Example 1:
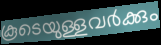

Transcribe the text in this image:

കൂടെയുള്ളവർക്കും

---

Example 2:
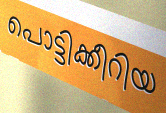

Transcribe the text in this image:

പൊട്ടിക്കീറിയ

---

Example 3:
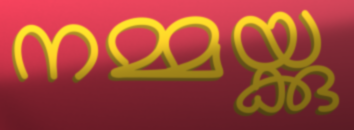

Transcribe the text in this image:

നമ്മയ്ക്കു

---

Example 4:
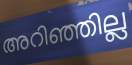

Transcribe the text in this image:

അറിഞ്ഞില്ല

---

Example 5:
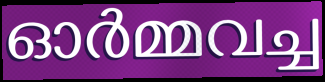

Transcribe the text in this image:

ഓർമ്മവച്ച